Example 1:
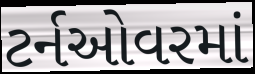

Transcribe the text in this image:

ટર્નઓવરમાં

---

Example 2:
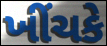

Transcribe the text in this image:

ખીંચકે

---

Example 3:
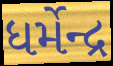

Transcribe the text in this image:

ધર્મેન્દ્ર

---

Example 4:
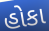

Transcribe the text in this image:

હોકા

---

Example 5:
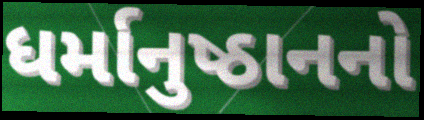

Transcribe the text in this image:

ધર્માનુષ્ઠાનનો